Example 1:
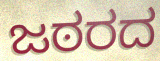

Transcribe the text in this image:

ಜಠರದ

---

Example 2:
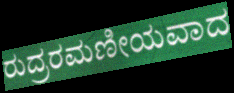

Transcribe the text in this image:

ರುದ್ರರಮಣೀಯವಾದ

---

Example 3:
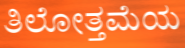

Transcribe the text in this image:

ತಿಲೋತ್ತಮೆಯ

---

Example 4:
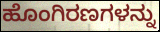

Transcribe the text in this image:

ಹೊಂಗಿರಣಗಳನ್ನು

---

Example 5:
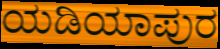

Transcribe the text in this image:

ಯಡಿಯಾಪುರ